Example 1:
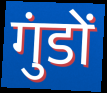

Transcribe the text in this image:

गुंडों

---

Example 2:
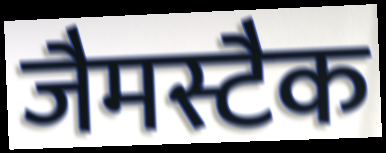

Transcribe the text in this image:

जैमस्टैक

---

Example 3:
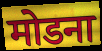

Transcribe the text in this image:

मोडना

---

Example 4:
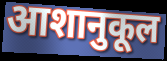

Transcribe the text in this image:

आशानुकूल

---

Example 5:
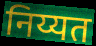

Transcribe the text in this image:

निय्यत